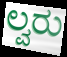
ಲ್ವರು